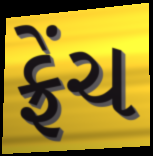
ફ્રેંચ